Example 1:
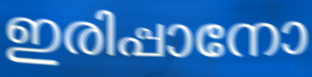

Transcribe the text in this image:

ഇരിപ്പാനോ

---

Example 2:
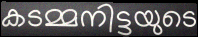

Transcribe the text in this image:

കടമ്മനിട്ടയുടെ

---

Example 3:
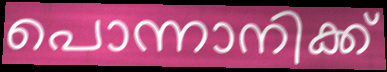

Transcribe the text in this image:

പൊന്നാനിക്ക്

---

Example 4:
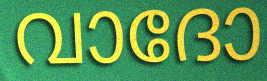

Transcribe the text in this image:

വാദോ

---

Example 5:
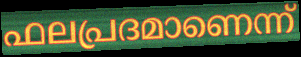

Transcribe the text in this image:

ഫലപ്രദമാണെന്ന്